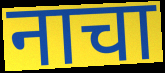
नाचा